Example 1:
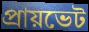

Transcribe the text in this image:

প্রায়ভেট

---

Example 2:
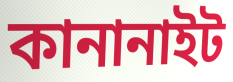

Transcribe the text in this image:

কানানাইট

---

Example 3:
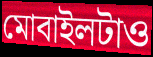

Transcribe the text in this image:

মোবাইলটাও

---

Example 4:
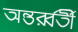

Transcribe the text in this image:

অন্তর্র্বর্তী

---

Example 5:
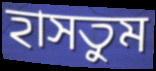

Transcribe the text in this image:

হাসতুম